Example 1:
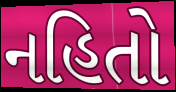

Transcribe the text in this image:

નહિતો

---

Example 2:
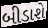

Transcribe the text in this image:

બીડાશે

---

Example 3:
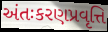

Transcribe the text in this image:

અંતઃકરણપ્રવૃત્તિ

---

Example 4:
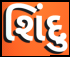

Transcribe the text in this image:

શિંદુ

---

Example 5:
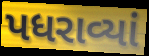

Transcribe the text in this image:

પધરાવ્યાં